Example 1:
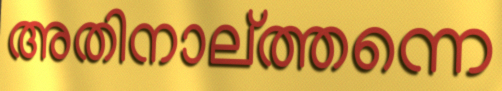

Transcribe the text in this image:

അതിനാല്ത്തന്നെ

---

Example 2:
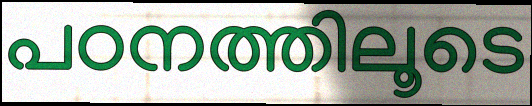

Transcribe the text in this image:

പഠനത്തിലൂടെ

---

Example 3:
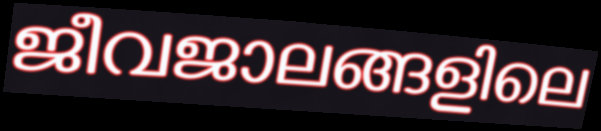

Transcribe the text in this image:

ജീവജാലങ്ങളിലെ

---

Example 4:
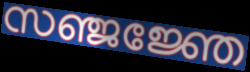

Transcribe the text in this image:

സഞ്ജജ്ഞേ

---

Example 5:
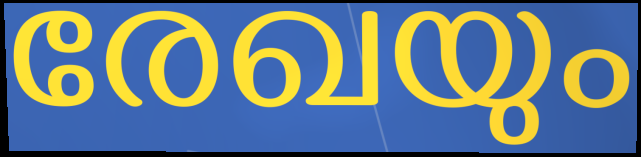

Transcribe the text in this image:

രേഖയും